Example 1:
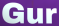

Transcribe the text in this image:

Gur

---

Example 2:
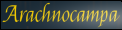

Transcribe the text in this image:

Arachnocampa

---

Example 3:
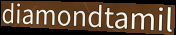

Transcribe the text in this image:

diamondtamil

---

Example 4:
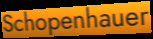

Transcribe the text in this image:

Schopenhauer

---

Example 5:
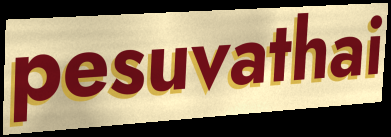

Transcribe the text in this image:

pesuvathai